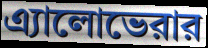
এ্যালোভেরার